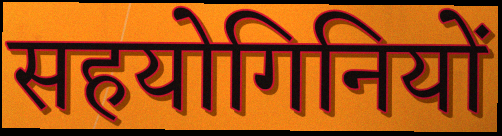
सहयोगिनियों